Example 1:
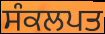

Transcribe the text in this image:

ਸੰਕਲਪਤ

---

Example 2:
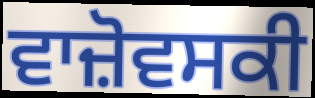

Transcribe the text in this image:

ਵਾਜ਼ੋਵਸਕੀ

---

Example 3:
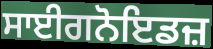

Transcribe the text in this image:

ਸਾਈਗਨੋਇਡਜ਼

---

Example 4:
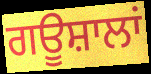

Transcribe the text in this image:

ਗਊਸ਼ਾਲਾਂ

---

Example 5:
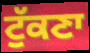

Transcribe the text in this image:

ਟੁੱਕਣਾ